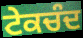
ਟੇਕਚੰਦ